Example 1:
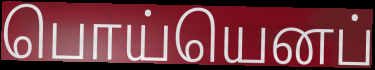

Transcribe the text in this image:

பொய்யெனப்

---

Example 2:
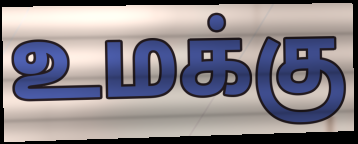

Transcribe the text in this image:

உமக்கு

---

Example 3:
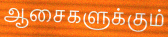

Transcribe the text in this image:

ஆசைகளுக்கும்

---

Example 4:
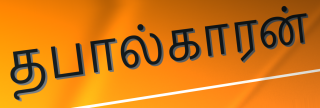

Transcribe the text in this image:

தபால்காரன்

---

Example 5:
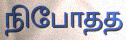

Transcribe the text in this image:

நிபோதத